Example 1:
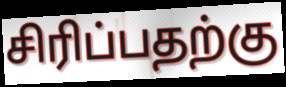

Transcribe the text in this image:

சிரிப்பதற்கு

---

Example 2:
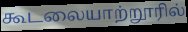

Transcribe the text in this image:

கூடலையாற்றூரில்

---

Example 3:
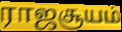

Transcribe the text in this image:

ராஜசூயம்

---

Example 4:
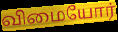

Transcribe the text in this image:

விமையோர்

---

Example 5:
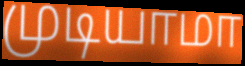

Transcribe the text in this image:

முடியாமா